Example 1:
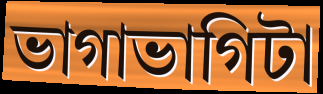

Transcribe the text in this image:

ভাগাভাগিটা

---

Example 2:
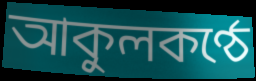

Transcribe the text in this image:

আকুলকণ্ঠে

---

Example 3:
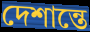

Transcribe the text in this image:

দেশান্তে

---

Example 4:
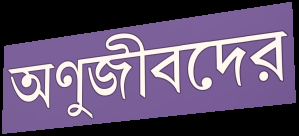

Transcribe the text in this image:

অণুজীবদের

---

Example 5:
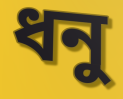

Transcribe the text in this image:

ধনু